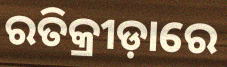
ରତିକ୍ରୀଡ଼ାରେ